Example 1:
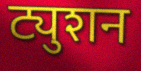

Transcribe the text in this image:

ट्युशन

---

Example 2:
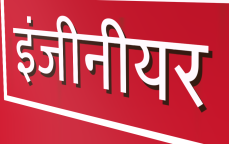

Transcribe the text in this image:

इंजीनीयर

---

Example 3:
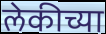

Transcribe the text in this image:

लेकीच्या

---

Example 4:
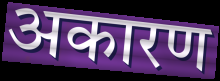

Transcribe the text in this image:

अकारण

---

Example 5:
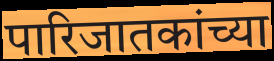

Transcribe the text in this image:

पारिजातकांच्या